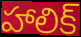
హాలిక్